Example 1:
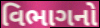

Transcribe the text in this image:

વિભાગનો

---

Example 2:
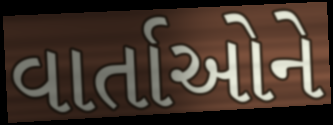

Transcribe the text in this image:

વાર્તાઓને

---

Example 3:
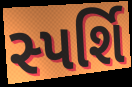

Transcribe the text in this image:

સ્પર્શિ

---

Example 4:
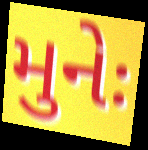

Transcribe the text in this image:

મુનેઃ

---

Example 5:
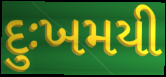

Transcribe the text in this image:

દુઃખમયી